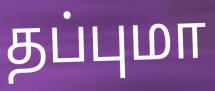
தப்புமா